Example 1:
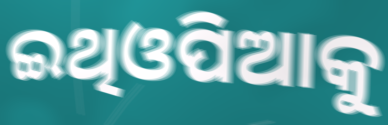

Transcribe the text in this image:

ଇଥିଓପିଆକୁ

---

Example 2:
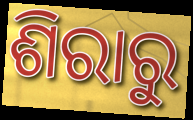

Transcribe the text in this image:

ଶିରାରୁ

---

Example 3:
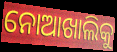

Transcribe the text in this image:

ନୋଆଖାଲିକୁ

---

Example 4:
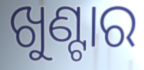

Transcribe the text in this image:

ଖୁଣ୍ଟାର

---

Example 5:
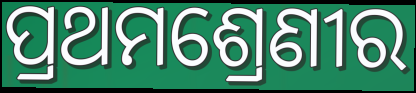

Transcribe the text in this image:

ପ୍ରଥମଶ୍ରେଣୀର